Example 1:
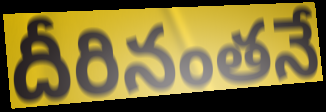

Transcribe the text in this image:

దీరినంతనే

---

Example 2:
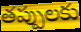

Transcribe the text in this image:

తప్పులకు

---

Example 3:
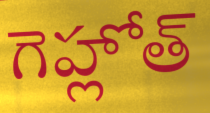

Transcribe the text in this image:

గెహ్లోత్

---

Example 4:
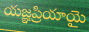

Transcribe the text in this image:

యజ్ఞప్రియాయై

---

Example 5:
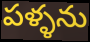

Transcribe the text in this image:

పళ్ళను